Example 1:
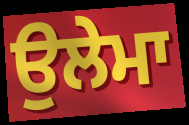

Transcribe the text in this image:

ਉਲੇਮਾ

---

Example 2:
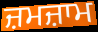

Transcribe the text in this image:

ਜ਼ਮਜ਼ਾਮ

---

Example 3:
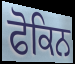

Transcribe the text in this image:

ਫੋਕਿਨ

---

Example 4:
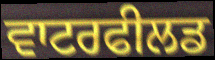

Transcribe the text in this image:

ਵਾਟਰਫੀਲਡ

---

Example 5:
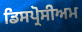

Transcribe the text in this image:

ਡਿਸਪ੍ਰੋਸੀਅਮ